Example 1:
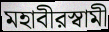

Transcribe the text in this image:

মহাবীরস্বামী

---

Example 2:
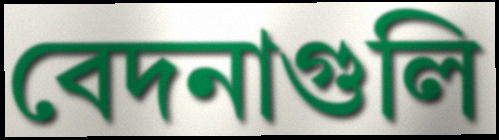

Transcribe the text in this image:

বেদনাগুলি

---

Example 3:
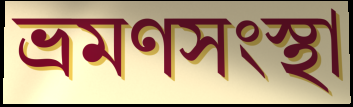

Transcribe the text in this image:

ভ্রমণসংস্থা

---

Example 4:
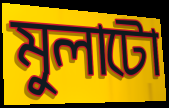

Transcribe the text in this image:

মুলাটো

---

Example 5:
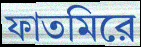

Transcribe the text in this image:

ফাতমিরে